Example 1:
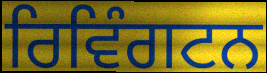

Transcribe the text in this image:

ਰਿਵਿੰਗਟਨ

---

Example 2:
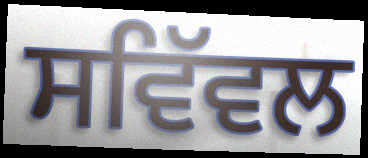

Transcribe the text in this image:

ਸਵਿੱਵਲ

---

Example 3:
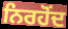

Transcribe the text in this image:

ਨਿਰਹੋਂਦ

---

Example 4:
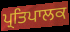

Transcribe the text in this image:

ਪ੍ਰਤਿਪਾਲਕ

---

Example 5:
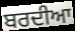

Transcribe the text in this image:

ਬਰਦੀਆ